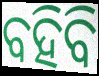
ବହିବି